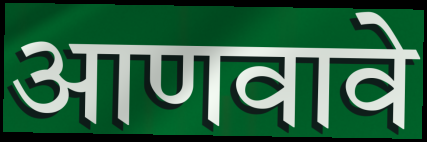
आणवावे